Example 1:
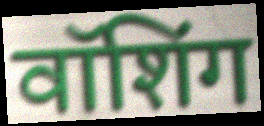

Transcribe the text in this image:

वॉशिंग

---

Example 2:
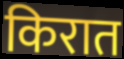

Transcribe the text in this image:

किरात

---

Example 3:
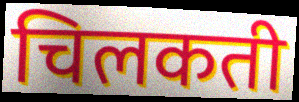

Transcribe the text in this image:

चिलकती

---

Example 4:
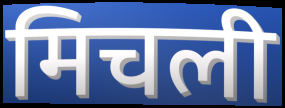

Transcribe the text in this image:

मिचली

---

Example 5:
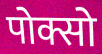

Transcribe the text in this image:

पोक्सो